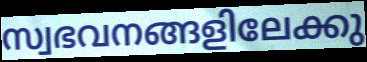
സ്വഭവനങ്ങളിലേക്കു